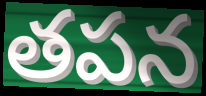
తపన